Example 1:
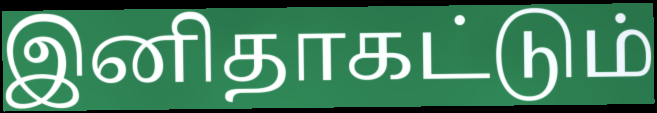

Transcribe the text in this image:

இனிதாகட்டும்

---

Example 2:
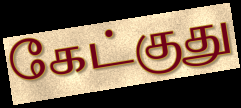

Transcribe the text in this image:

கேட்குது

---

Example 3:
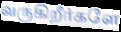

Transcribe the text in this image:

வருகிறீர்களே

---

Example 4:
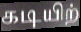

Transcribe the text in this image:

கடியிற்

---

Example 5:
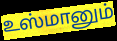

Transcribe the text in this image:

உஸ்மானும்